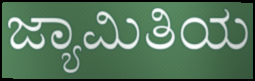
ಜ್ಯಾಮಿತಿಯ